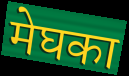
मेघका